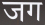
जग